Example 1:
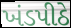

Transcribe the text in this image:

ખંડપીઠે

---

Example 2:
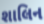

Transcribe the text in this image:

શાલિન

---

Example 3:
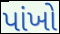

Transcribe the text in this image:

પાંખો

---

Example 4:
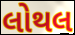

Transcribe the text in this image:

લોથલ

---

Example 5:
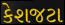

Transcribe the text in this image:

કેશજટા